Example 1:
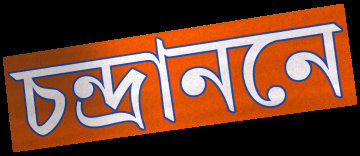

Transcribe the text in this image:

চন্দ্রাননে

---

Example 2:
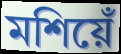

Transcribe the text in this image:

মশিয়েঁ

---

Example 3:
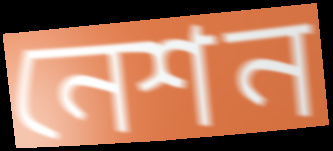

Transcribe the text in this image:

নেশন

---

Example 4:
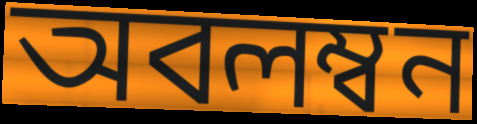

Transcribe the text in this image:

অবলম্বন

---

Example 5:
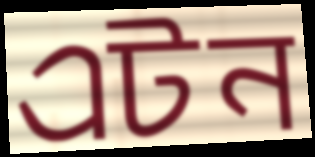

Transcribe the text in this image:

এটন